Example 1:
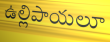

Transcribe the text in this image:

ఉల్లిపాయలూ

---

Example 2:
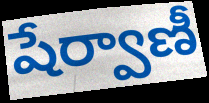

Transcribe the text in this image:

షేర్వాణీ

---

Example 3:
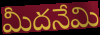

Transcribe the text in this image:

మీదనేమి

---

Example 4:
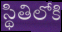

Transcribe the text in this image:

స్థితిలోకి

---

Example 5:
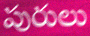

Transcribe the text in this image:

పురులు